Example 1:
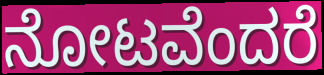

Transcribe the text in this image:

ನೋಟವೆಂದರೆ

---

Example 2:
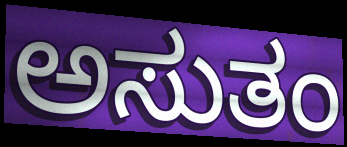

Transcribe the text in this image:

ಅಸುತಂ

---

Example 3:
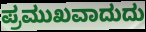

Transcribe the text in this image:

ಪ್ರಮುಖವಾದುದು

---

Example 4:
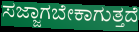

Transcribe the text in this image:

ಸಜ್ಜಾಗಬೇಕಾಗುತ್ತದೆ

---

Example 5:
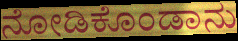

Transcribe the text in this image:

ನೋಡಿಕೊಂಡಾನು